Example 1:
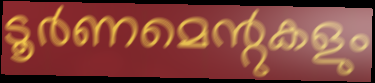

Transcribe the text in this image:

ടൂർണമെന്റുകളും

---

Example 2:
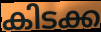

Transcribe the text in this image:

കിടക്ക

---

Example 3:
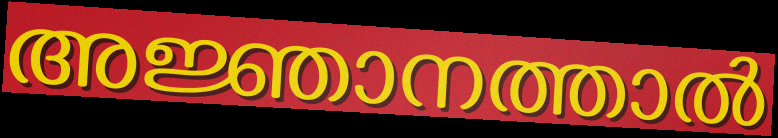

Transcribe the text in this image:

അജ്ഞാനത്താൽ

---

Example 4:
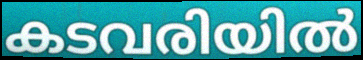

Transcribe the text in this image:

കടവരിയിൽ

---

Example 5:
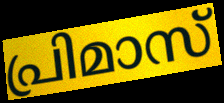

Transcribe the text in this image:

പ്രിമാസ്